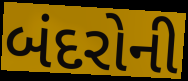
બંદરોની